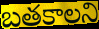
బతకాలని